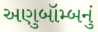
અણુબૉમ્બનું